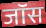
जॉस